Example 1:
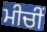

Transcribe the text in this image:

ਮੀਚੀਂ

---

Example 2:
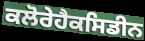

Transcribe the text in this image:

ਕਲੋਰੇਹੈਕਸਿਡੀਨ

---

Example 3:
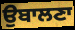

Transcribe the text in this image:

ਉਬਾਲਣਾ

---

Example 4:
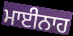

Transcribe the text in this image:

ਮਾਈਨਾਹ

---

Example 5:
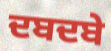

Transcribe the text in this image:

ਦਬਦਬੇ